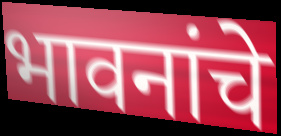
भावनांचे